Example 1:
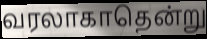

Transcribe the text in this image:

வரலாகாதென்று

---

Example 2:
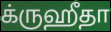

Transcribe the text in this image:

க்ருஹீதா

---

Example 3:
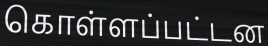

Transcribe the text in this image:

கொள்ளப்பட்டன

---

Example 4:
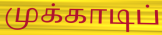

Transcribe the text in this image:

முக்காடிப்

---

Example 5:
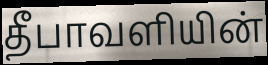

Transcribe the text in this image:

தீபாவளியின்